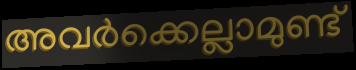
അവർക്കെല്ലാമുണ്ട്